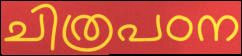
ചിത്രപഠന